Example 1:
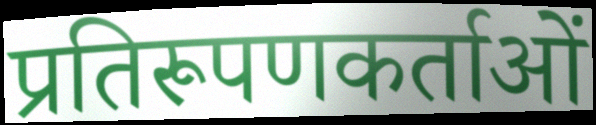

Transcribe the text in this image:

प्रतिरूपणकर्ताओं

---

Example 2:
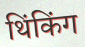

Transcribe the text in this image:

थिंकिंग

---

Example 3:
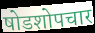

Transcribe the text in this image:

षोडशोपचार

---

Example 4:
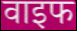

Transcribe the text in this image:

वाइफ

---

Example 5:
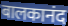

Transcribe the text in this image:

बालकानंद